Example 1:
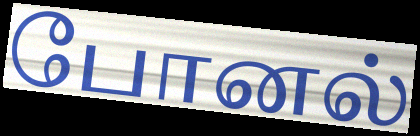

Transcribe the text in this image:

போனல்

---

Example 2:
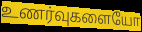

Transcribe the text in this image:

உணர்வுகளையோ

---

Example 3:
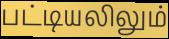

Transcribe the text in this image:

பட்டியலிலும்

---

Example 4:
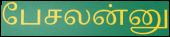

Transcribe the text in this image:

பேசலன்னு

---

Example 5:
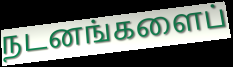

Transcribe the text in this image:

நடனங்களைப்